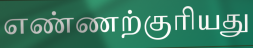
எண்ணற்குரியது